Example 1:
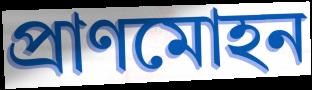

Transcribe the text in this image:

প্রাণমোহন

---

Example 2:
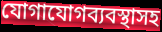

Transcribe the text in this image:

যোগাযোগব্যবস্থাসহ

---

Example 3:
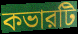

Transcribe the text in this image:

কভারটি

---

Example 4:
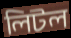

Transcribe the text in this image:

লিটল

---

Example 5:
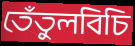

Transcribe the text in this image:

তেঁতুলবিচি